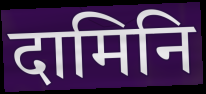
दामिनि